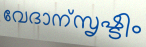
വേദാന്സൃഷ്ടിം